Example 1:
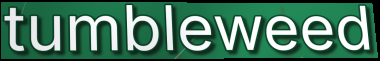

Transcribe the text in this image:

tumbleweed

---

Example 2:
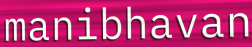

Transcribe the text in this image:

manibhavan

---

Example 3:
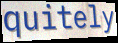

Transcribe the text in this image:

quitely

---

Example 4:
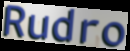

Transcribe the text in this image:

Rudro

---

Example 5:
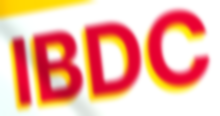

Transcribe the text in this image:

IBDC